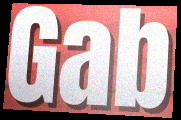
Gab